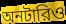
অনটারিও